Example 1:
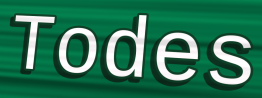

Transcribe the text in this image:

Todes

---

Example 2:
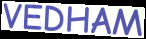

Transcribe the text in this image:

VEDHAM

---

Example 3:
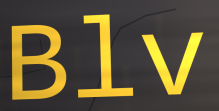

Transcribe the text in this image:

Blv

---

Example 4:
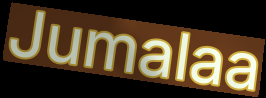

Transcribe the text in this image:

Jumalaa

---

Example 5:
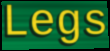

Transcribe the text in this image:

Legs